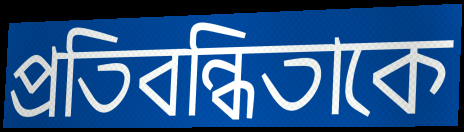
প্রতিবন্ধিতাকে